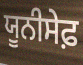
ਯੂਨੀਸੇਫ਼